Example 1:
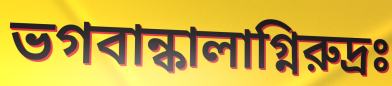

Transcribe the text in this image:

ভগবান্কালাগ্নিরুদ্রঃ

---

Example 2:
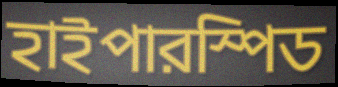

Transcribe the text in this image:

হাইপারস্পিড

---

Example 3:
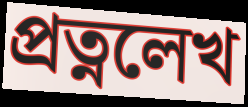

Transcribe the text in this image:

প্রত্নলেখ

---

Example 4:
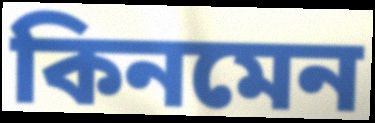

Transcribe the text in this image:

কিনমেন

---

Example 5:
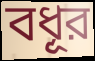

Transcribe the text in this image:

বধূর